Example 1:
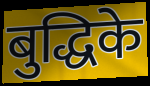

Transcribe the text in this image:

बुद्धिके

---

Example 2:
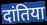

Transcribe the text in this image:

दांतिया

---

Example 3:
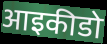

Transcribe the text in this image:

आइकीडो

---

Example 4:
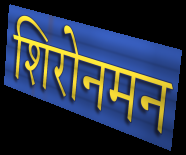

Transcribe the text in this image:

शिरोनमन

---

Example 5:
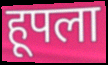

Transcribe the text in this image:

हूपला